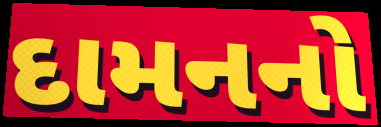
દામનનો